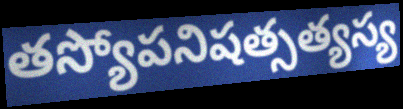
తస్యోపనిషత్సత్యస్య